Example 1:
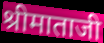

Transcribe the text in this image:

श्रीमाताजी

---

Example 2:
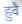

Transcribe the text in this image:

हुवै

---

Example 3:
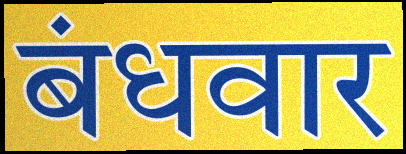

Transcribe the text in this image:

बंधवार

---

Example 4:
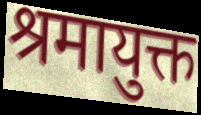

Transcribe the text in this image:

श्रमायुक्त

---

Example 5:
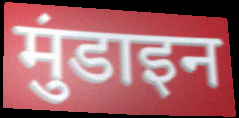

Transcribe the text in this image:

मुंडाइन